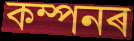
কম্পনৰ